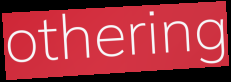
othering